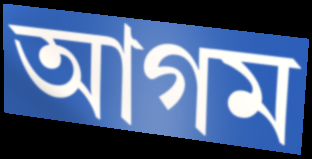
আগম